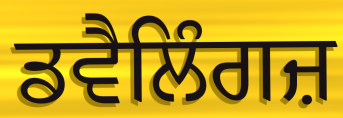
ਡਵੈਲਿੰਗਜ਼